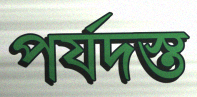
পর্যদস্ত